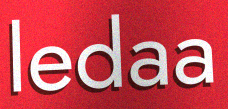
ledaa